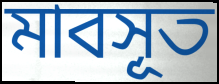
মাবসূত